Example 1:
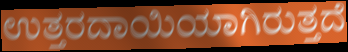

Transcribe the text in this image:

ಉತ್ತರದಾಯಿಯಾಗಿರುತ್ತದೆ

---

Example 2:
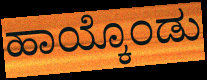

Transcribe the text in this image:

ಹಾಯ್ಕೊಂಡು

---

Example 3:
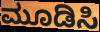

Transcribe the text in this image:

ಮೂಡಿಸಿ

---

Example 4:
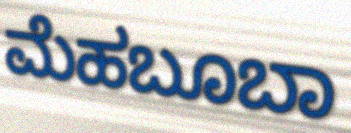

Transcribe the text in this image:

ಮೆಹಬೂಬಾ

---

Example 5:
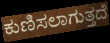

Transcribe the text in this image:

ಕುಣಿಸಲಾಗುತ್ತದೆ